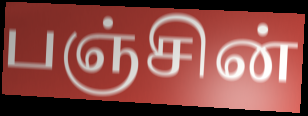
பஞ்சின்